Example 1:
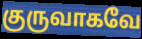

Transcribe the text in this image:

குருவாகவே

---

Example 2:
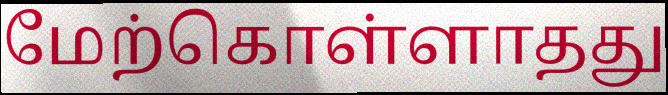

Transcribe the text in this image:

மேற்கொள்ளாதது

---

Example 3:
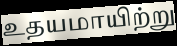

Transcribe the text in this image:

உதயமாயிற்று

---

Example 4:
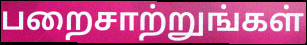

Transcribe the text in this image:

பறைசாற்றுங்கள்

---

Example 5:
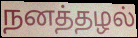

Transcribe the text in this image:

நனத்தழல்